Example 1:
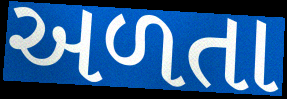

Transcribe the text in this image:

અળતા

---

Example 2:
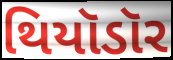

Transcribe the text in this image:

થિયૉડૉર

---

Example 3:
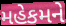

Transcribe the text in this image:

મહેકમને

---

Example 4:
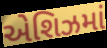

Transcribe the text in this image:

એશિઝમાં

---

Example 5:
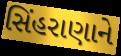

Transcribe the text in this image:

સિંહરાણાને